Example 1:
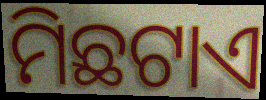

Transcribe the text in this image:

ମିଛଟାଏ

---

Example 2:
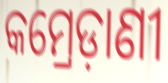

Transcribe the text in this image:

କମ୍ରେଡ଼ାଣୀ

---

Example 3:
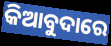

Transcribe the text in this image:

କିଆବୁଦାରେ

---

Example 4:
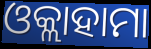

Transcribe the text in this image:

ଓକ୍ଲାହାମା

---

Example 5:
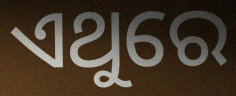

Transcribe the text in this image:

ଏଥୁରେ